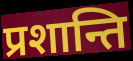
प्रशान्ति